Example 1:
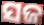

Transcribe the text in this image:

ସଜ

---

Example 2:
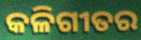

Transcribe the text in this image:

କଳିଗୀତର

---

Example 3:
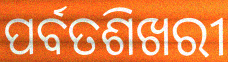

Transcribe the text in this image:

ପର୍ବତଶିଖରୀ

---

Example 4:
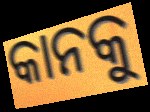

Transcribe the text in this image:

କାନକୁ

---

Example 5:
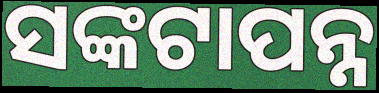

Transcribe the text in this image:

ସଙ୍କଟାପନ୍ନ